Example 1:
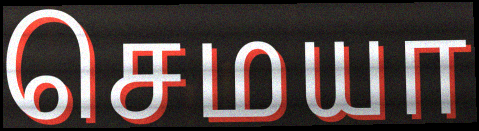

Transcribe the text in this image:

செமயா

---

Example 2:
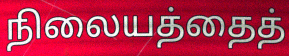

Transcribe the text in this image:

நிலையத்தைத்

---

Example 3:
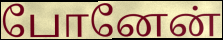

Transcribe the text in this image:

போனேன்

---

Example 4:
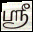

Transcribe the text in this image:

ஸ்ரீ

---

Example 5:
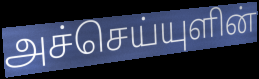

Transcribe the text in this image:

அச்செய்யுளின்